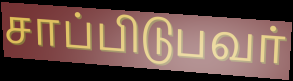
சாப்பிடுபவர்